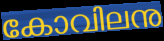
കോവിലനു